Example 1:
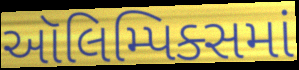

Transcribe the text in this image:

ઑલિમ્પિક્સમાં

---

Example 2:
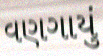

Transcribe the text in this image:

વણગાયું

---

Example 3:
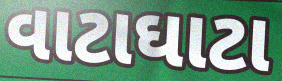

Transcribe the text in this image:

વાટાઘાટા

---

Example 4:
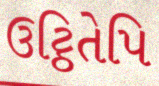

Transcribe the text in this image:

ઉટ્ઠિતેપિ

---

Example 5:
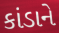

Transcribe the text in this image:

કાંડાને